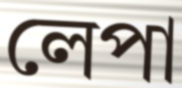
লেপা